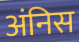
अंनिस